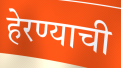
हेरण्याची